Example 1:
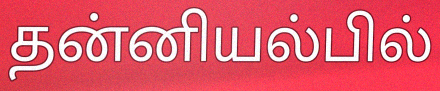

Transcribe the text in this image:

தன்னியல்பில்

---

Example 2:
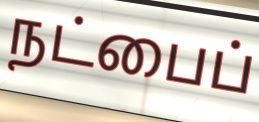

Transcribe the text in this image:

நட்பைப்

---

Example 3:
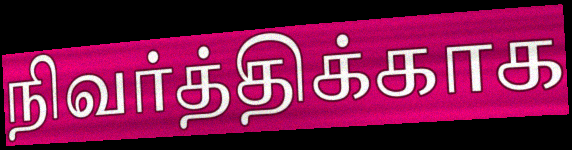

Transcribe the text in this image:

நிவர்த்திக்காக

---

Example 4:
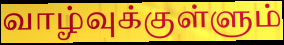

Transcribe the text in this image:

வாழ்வுக்குள்ளும்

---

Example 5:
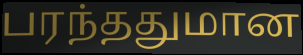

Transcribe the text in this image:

பரந்ததுமான